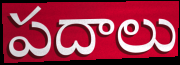
పదాలు